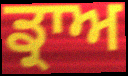
ਡ੍ਰਾਅ